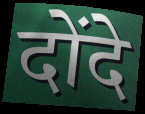
दोंदे